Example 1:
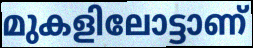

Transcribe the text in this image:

മുകളിലോട്ടാണ്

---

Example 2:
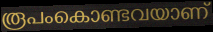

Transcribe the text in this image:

രൂപംകൊണ്ടവയാണ്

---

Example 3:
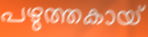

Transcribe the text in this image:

പഴുത്തകായ്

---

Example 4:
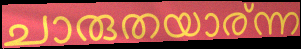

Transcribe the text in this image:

ചാരുതയാര്ന്ന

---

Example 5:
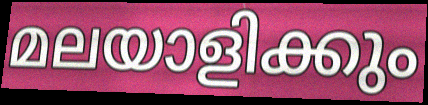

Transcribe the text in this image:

മലയാളിക്കും